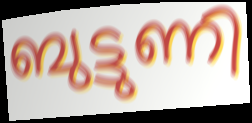
ബുട്ടുണി